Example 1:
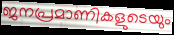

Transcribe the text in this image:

ജനപ്രമാണികളുടെയും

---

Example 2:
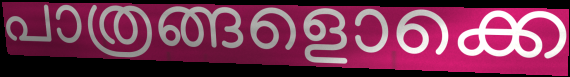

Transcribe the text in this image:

പാത്രങ്ങളൊക്കെ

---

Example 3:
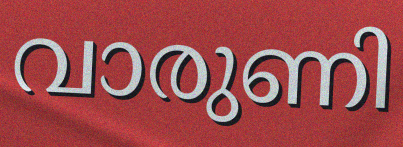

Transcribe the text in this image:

വാരുണി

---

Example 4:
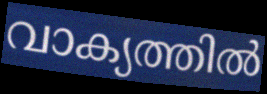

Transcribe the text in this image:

വാക്യത്തിൽ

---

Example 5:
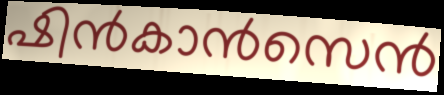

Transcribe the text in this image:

ഷിൻകാൻസെൻ